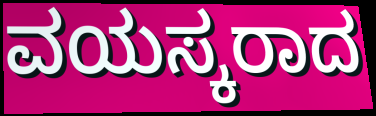
ವಯಸ್ಕರಾದ